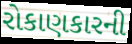
રોકાણકારની